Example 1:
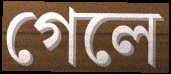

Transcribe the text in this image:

গেলে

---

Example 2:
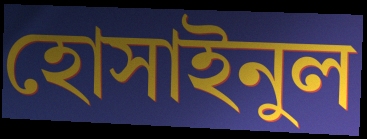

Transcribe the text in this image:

হোসাইনুল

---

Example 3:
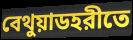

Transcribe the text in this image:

বেথুয়াডহরীতে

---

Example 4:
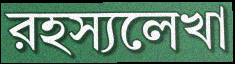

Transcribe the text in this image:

রহস্যলেখা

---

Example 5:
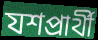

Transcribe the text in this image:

যশপ্রার্থী